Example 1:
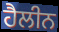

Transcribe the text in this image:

ਹੈਲੀਨ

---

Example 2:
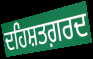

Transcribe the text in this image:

ਦਹਿਸ਼ਤਗ਼ਰਦ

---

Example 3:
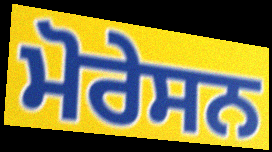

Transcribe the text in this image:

ਮੋਰੇਸਨ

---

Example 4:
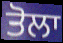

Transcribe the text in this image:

ਤੋਲਾ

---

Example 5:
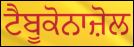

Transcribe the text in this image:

ਟੈਬੂਕੋਨਾਜ਼ੋਲ